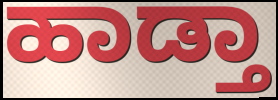
ಹಾಡ್ತಾ